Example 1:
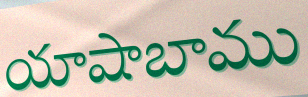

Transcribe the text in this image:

యాషాబాము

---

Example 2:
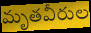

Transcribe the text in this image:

మృతవీరుల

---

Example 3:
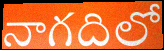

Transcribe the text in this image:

నాగదిలో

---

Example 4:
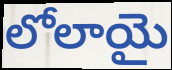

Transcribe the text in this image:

లోలాయై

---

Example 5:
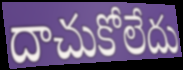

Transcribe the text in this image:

దాచుకోలేదు